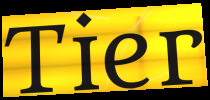
Tier